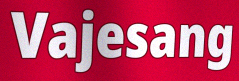
Vajesang